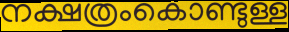
നക്ഷത്രംകൊണ്ടുള്ള